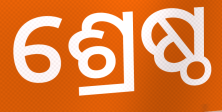
ଶ୍ରେଷ୍ଠ